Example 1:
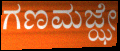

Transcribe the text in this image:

ಗಣಮಜ್ಝೇ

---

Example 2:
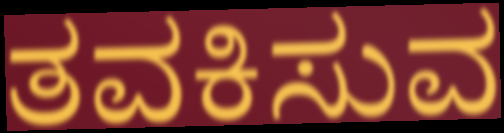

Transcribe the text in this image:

ತವಕಿಸುವ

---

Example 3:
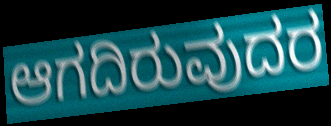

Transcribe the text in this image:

ಆಗದಿರುವುದರ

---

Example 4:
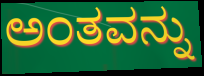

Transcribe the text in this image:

ಅಂತವನ್ನು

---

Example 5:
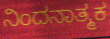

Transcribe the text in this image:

ನಿಂದನಾತ್ಮಕ